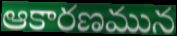
ఆకారణమున